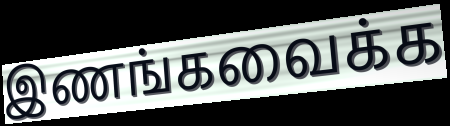
இணங்கவைக்க